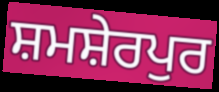
ਸ਼ਮਸ਼ੇਰਪੁਰ